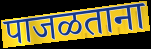
पाजळताना